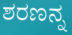
ಶರಣನ್ನ